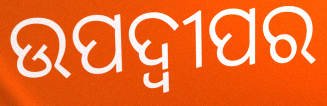
ଉପଦ୍ୱୀପର